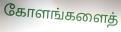
கோளங்களைத்